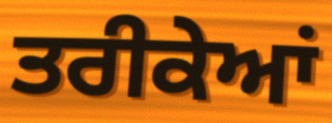
ਤਰੀਕੇਆਂ